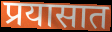
प्रयासात